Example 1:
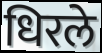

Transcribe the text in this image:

धिरले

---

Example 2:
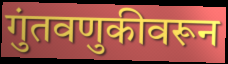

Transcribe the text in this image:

गुंतवणुकीवरून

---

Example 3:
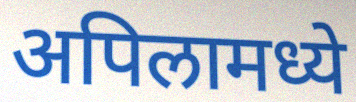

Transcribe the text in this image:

अपिलामध्ये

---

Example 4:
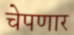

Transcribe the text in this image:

चेपणार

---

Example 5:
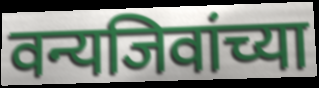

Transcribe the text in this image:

वन्यजिवांच्या